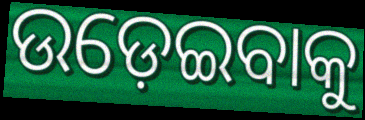
ଉଡ଼େଇବାକୁ